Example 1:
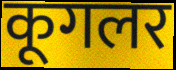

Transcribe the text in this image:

कूगलर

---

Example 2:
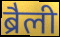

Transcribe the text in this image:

ब्रैली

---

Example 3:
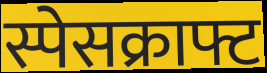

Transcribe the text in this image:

स्पेसक्राफ्ट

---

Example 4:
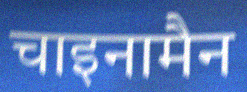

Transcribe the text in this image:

चाइनामैन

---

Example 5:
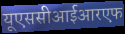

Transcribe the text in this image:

यूएससीआईआरएफ